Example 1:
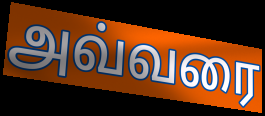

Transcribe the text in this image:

அவ்வரை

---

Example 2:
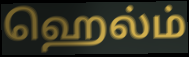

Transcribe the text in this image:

ஹெல்ம்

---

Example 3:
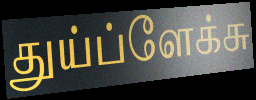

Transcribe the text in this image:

துய்ப்ளேக்சு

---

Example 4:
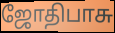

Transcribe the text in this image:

ஜோதிபாசு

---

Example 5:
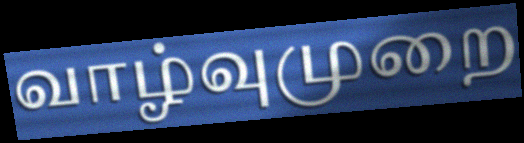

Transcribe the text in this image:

வாழ்வுமுறை